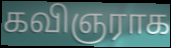
கவிஞராக